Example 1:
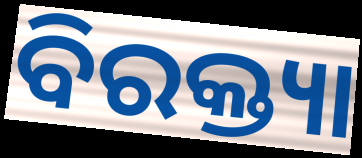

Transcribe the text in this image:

ବିରକ୍ତ୍ୟା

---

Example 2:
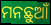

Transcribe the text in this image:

ମନଛୁଆଁ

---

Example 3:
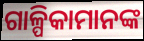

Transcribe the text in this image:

ଗାଳ୍ପିକାମାନଙ୍କ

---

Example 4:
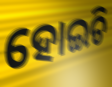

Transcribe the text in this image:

ହୋଇଚି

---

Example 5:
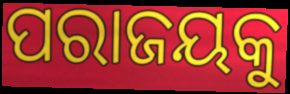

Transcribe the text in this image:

ପରାଜୟକୁ